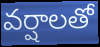
వర్షాలతో